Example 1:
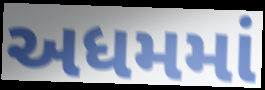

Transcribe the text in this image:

અધમમાં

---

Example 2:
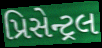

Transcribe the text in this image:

પ્રિસેન્ટ્રલ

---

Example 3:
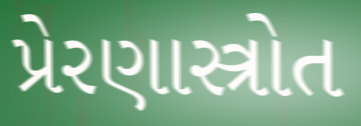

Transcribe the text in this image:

પ્રેરણાસ્ત્રોત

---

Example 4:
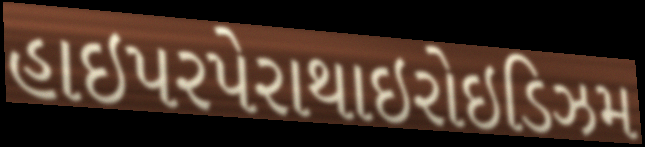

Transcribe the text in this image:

હાઇપરપેરાથાઇરોઇડિઝમ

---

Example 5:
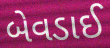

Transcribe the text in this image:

બેવડાઈ